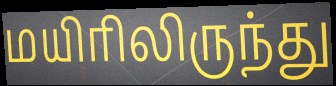
மயிரிலிருந்து